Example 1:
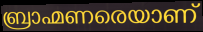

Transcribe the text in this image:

ബ്രാഹ്മണരെയാണ്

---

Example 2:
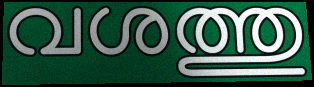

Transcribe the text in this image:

വശത്തു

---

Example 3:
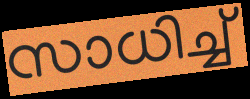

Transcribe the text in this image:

സാധിച്ച്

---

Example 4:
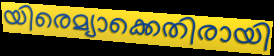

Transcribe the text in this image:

യിരെമ്യാക്കെതിരായി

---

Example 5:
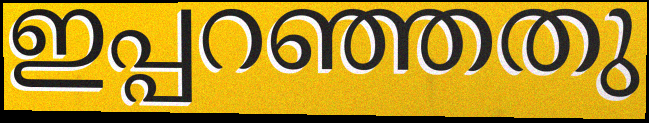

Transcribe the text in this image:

ഇപ്പറഞ്ഞതു